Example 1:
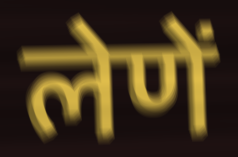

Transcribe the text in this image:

लेणें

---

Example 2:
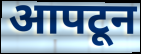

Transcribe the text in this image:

आपटून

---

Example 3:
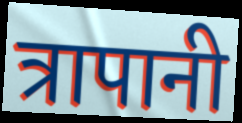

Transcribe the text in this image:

त्रापानी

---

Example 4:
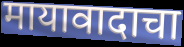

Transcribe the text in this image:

मायावादाचा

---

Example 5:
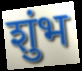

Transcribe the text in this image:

शुंभ